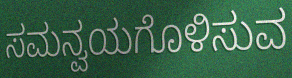
ಸಮನ್ವಯಗೊಳಿಸುವ